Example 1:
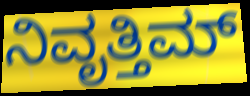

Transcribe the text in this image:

ನಿವೃತ್ತಿಮ್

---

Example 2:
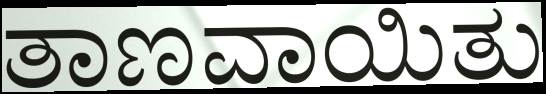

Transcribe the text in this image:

ತಾಣವಾಯಿತು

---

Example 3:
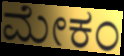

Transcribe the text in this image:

ಮೇಕಂ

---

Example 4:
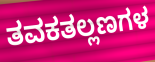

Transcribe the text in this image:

ತವಕತಲ್ಲಣಗಳ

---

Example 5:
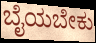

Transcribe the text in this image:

ಬೈಯಬೇಕು